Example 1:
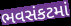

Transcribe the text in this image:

ભવસંકટમાં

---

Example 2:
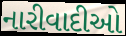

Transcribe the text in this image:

નારીવાદીઓ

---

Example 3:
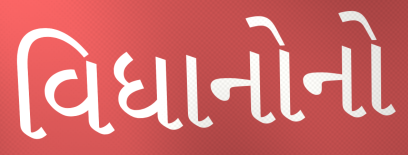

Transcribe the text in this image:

વિધાનોનો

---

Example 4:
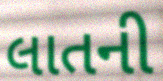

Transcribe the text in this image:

લાતની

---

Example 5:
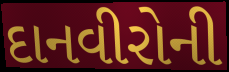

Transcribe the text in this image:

દાનવીરોની